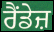
ਰੈਂਡੇਜ਼